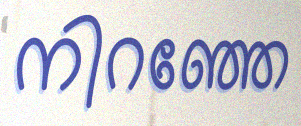
നിറഞ്ഞേ